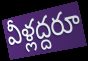
వీళ్లద్దరూ